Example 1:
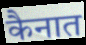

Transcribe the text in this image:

कैनात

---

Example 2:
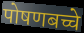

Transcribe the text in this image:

पोषणबच्चे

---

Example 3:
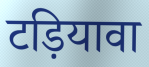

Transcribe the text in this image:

टड़ियावा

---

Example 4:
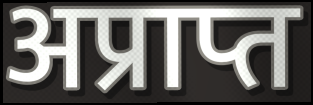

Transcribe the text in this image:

अप्राप्त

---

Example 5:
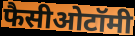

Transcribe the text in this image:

फैसीओटॉमी